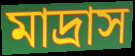
মাদ্রাস